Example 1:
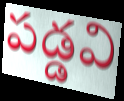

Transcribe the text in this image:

పడ్డవి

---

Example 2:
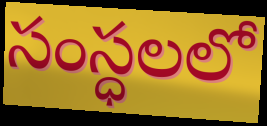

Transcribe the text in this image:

సంస్ధలలో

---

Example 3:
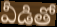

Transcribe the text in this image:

వీడితో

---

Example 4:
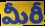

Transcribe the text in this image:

మీరీ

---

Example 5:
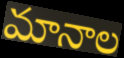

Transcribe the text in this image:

మానాల